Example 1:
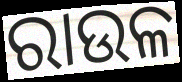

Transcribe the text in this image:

ରାଉଳ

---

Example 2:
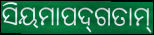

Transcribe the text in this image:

ସିୟମାପଦ୍‌ଗତାମ୍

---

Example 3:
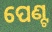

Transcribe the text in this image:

ପେଣ୍ଟ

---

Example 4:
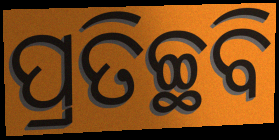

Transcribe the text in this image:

ପ୍ରତିଚ୍ଛବି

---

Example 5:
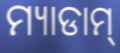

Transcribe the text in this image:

ମ୍ଯାଡାମ୍